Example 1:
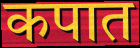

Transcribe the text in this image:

कपात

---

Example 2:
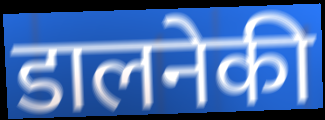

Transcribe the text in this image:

डालनेकी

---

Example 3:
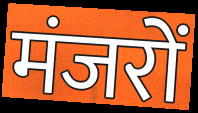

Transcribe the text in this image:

मंजरों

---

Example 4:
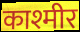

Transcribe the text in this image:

काश्मीर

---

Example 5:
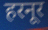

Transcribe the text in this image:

हरनूर